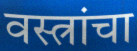
वस्त्रांचा